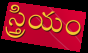
స్త్రియం